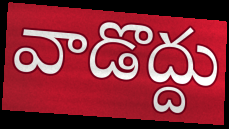
వాడొద్దు